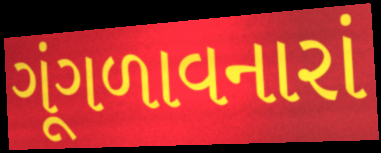
ગૂંગળાવનારાં